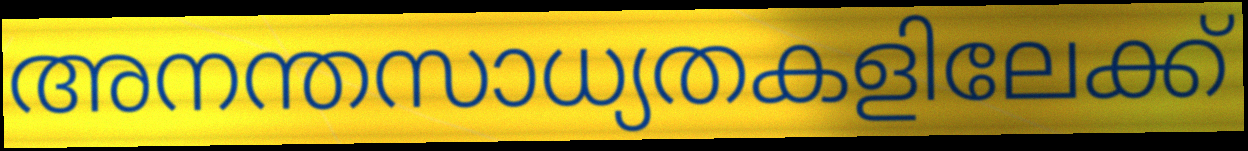
അനന്തസാധ്യതകളിലേക്ക്